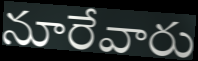
నూరేవారు